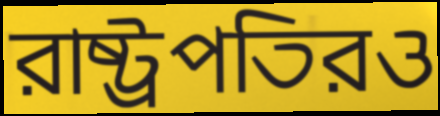
রাষ্ট্রপতিরও